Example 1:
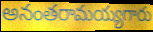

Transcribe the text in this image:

అనంతరామయ్యగారు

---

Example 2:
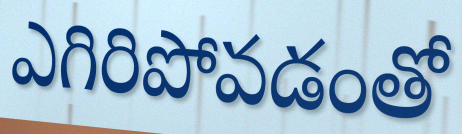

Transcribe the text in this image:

ఎగిరిపోవడంతో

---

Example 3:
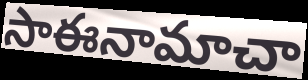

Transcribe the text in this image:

సాఈనామాచా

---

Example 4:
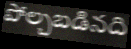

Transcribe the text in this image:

పోల్చబడినది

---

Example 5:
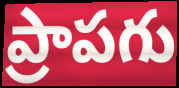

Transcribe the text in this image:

ప్రాపగు